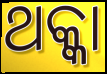
ଥକ୍କା